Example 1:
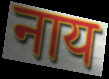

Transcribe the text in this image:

नाय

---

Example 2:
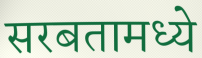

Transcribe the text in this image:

सरबतामध्ये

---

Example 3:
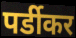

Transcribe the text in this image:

पर्डीकर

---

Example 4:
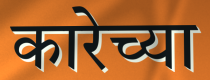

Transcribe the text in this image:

कारेच्या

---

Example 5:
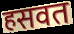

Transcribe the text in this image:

हसवत